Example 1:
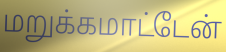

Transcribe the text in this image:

மறுக்கமாட்டேன்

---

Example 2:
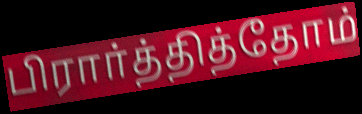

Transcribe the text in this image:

பிரார்த்தித்தோம்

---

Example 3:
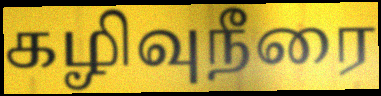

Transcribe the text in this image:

கழிவுநீரை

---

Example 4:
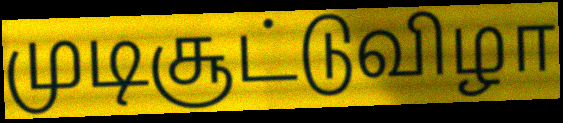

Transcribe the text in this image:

முடிசூட்டுவிழா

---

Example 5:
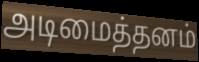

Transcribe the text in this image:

அடிமைத்தனம்